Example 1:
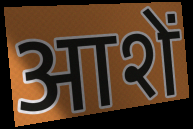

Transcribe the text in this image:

आशें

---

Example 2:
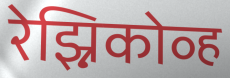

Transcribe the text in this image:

रेझ्निकोव्ह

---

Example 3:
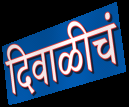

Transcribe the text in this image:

दिवाळीचं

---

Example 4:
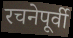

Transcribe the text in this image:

रचनेपूर्वी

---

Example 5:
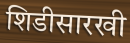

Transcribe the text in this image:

शिडीसारखी